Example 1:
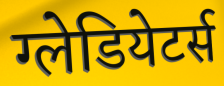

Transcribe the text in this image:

ग्लेडियेटर्स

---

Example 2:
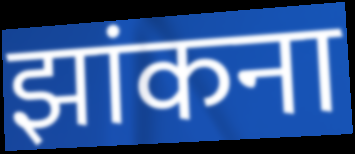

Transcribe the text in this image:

झांकना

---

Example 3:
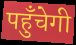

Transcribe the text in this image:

पहुँचेगी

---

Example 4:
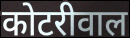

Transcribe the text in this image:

कोटरीवाल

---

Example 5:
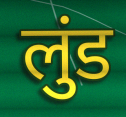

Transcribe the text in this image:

लुंड